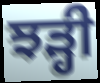
ਝੜ੍ਹੀ